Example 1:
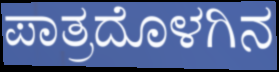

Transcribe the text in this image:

ಪಾತ್ರದೊಳಗಿನ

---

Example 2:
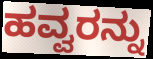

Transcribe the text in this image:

ಹವ್ವರನ್ನು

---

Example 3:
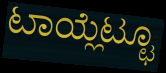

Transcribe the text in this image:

ಟಾಯ್ಲೆಟ್ಟೂ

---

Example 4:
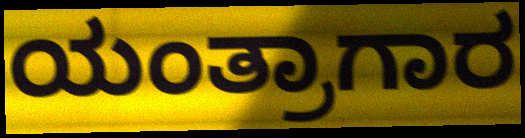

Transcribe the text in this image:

ಯಂತ್ರಾಗಾರ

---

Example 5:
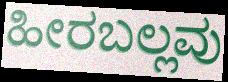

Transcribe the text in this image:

ಹೀರಬಲ್ಲವು